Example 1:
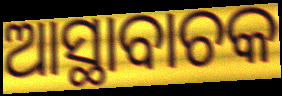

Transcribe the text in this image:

ଆସ୍ଥାବାଚକ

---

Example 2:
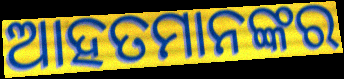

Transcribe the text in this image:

ଆହତମାନଙ୍କର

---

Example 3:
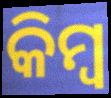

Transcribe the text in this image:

କିମ୍ବ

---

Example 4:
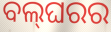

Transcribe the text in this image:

ବଲ୍‌ଘରର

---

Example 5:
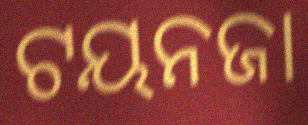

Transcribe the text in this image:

ଟୟନଜା